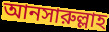
আনসারুল্লাহ